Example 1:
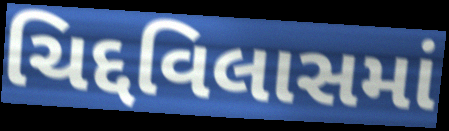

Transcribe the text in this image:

ચિદ્દવિલાસમાં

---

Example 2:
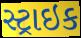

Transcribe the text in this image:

સ્ટ્રાઇક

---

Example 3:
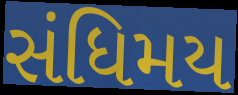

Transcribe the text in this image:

સંધિમય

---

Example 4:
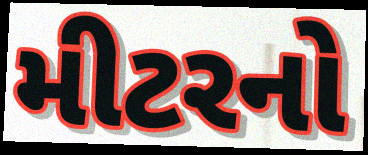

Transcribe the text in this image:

મીટરનો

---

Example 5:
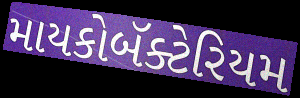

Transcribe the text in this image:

માયકોબૅક્ટેરિયમ